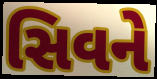
સિવને